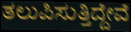
ತಲುಪಿಸುತ್ತಿದ್ದೇವೆ